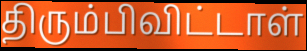
திரும்பிவிட்டாள்